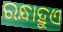
ରନ୍ଧାହୁଏ